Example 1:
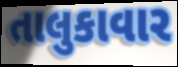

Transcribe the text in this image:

તાલુકાવાર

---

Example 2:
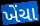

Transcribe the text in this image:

ખેંચા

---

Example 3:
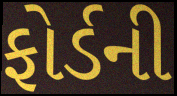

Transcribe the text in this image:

ફોર્ડની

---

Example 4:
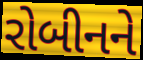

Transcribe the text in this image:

રોબીનને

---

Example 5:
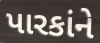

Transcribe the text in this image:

પારકાંને